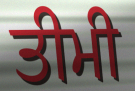
ਤੀਮੀ